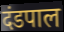
दंडपाल